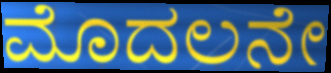
ಮೊದಲನೇ